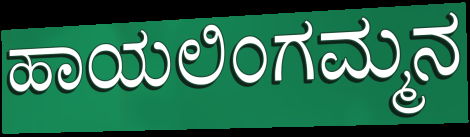
ಹಾಯಲಿಂಗಮ್ಮನ